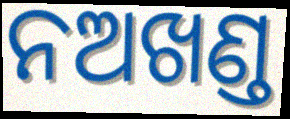
ନଅଖଣ୍ଡ